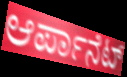
ಆರ್ಪಾನೆಟ್